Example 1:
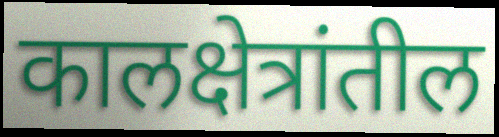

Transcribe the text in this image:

कालक्षेत्रांतील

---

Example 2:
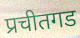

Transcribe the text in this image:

प्रचीतगड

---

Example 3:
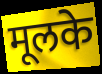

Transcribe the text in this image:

मूलके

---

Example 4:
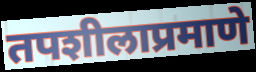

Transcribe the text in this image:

तपशीलाप्रमाणे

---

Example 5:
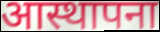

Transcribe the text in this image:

आस्थापना